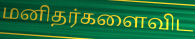
மனிதர்களைவிட